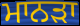
ਮਾਨੜਾ